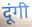
दूंगी